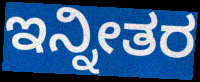
ಇನ್ನೀತರ